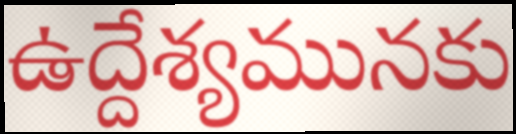
ఉద్దేశ్యమునకు